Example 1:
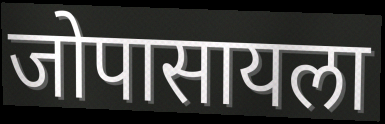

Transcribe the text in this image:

जोपासायला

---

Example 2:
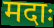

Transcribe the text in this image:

मदाः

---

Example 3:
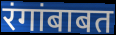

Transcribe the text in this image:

रंगांबाबत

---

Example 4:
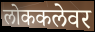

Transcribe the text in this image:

लोककलेवर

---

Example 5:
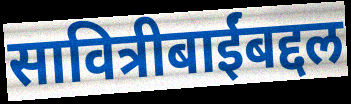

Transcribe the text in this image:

सावित्रीबाईंबद्दल